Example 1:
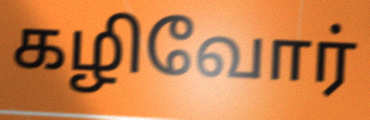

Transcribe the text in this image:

கழிவோர்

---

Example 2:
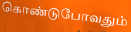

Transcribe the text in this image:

கொண்டுபோவதும்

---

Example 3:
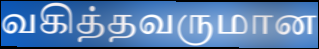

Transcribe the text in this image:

வகித்தவருமான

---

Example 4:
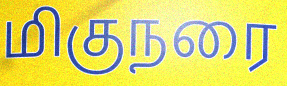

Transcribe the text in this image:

மிகுநரை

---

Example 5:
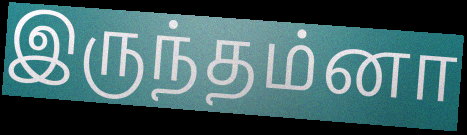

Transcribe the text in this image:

இருந்தம்னா